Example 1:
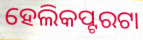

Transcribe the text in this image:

ହେଲିକପ୍ଟରଟା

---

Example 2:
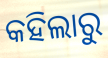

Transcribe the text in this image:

କହିଲାରୁ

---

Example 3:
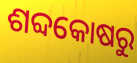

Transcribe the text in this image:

ଶବ୍ଦକୋଷରୁ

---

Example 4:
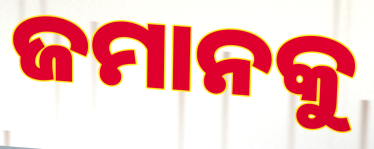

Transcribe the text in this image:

ଜମାନକୁ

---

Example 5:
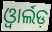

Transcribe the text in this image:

ଓ୍ୱାର୍ଲଡ଼